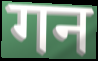
गन